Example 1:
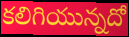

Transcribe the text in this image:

కలిగియున్నదో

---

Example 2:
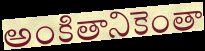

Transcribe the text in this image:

అంకితానికెంతా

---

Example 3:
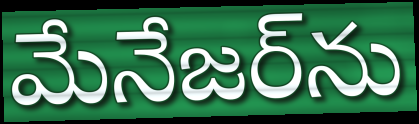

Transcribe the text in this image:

మేనేజర్‌ను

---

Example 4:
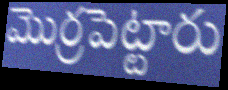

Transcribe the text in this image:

మొర్రపెట్టారు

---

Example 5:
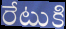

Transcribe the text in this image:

రేటుకి